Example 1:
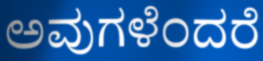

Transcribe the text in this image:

ಅವುಗಳೆಂದರೆ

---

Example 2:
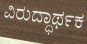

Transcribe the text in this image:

ವಿರುದ್ಧಾರ್ಥಕ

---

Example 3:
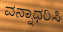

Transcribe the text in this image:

ವನ್ನಾಧರಿಸಿ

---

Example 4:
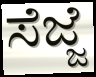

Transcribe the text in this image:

ಸೆಜ್ಜೆ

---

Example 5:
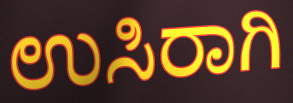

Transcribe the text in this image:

ಉಸಿರಾಗಿ